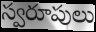
స్వరూపులు